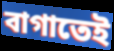
বাগাতেই